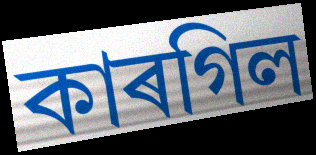
কাৰগিল